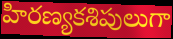
హిరణ్యకశిపులుగా